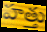
హత్తు